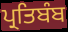
ਪ੍ਰਤਿਬੰਬ